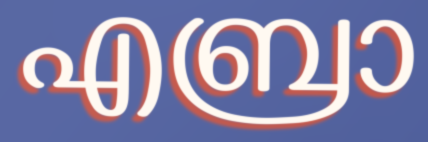
എബ്രാ